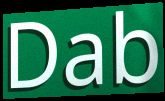
Dab